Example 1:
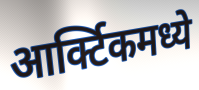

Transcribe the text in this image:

आर्क्टिकमध्ये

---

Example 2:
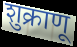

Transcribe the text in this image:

शुक्राणू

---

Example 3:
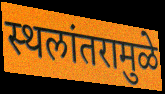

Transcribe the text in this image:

स्थलांतरामुळे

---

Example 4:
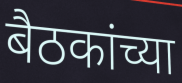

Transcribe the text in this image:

बैठकांच्या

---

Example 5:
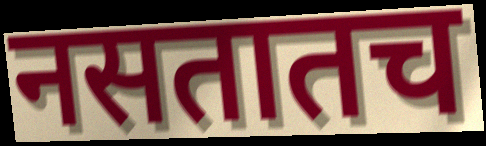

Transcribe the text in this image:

नसतातच